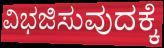
ವಿಭಜಿಸುವುದಕ್ಕೆ